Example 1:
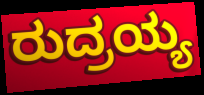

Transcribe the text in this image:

ರುದ್ರಯ್ಯ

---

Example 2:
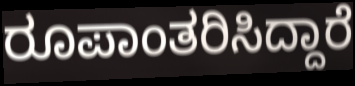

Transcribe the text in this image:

ರೂಪಾಂತರಿಸಿದ್ದಾರೆ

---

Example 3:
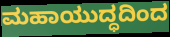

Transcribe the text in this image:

ಮಹಾಯುದ್ಧದಿಂದ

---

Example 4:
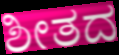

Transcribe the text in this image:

ಶೀತದ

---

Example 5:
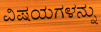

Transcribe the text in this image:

ವಿಷಯಗಳನ್ನು